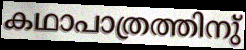
കഥാപാത്രത്തിനു്